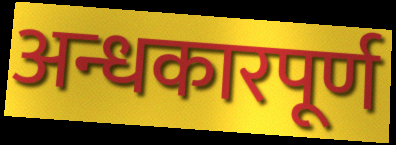
अन्धकारपूर्ण